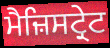
ਮੈਜ਼ਿਸਟ੍ਰੇਟ